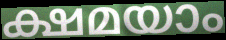
ക്ഷമയാം